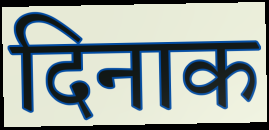
दिनाक